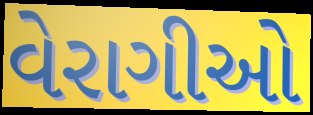
વેરાગીઓ